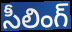
సీలింగ్